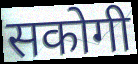
सकोगी